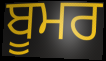
ਬੂਮਰ